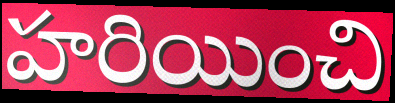
హరియించి